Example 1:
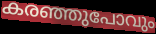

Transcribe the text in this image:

കരഞ്ഞുപോവും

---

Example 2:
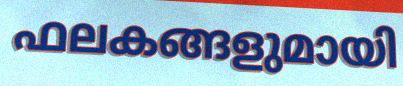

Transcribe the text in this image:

ഫലകങ്ങളുമായി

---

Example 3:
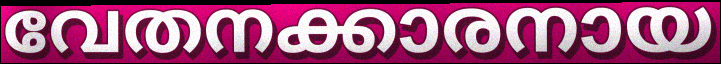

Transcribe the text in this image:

വേതനക്കാരനായ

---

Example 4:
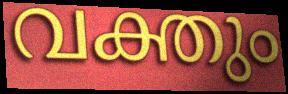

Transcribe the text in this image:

വക്തും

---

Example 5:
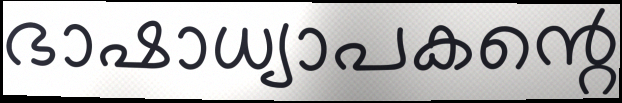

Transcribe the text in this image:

ഭാഷാധ്യാപകന്റെ